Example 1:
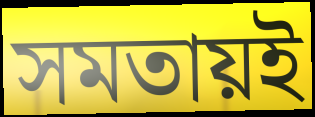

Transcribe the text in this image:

সমতায়ই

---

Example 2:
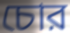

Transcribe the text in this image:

চোর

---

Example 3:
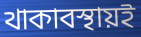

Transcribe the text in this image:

থাকাবস্থায়ই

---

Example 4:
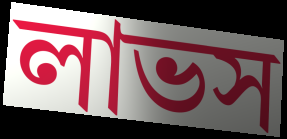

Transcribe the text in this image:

লাভস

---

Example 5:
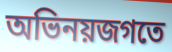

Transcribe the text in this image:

অভিনয়জগতে